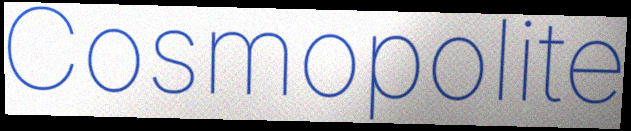
Cosmopolite